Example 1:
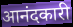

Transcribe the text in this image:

आनंदकारी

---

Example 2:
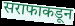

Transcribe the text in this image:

सराफाकडून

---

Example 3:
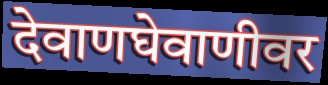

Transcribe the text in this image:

देवाणघेवाणीवर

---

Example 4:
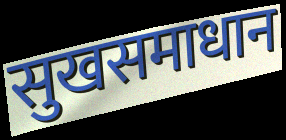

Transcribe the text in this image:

सुखसमाधान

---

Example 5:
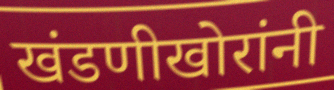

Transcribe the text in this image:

खंडणीखोरांनी